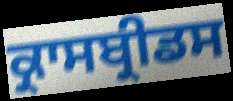
ਕ੍ਰਾਸਬ੍ਰੀਡਸ